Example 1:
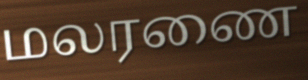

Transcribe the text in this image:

மலரணை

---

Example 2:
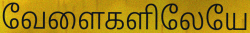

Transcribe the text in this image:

வேளைகளிலேயே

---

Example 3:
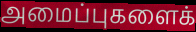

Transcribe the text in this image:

அமைப்புகளைக்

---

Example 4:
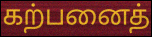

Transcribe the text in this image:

கற்பனைத்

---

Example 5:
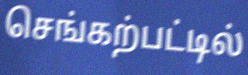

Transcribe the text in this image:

செங்கற்பட்டில்